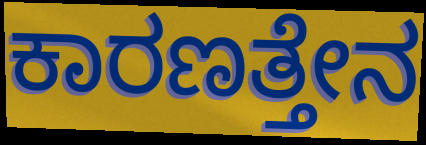
ಕಾರಣತ್ತೇನ